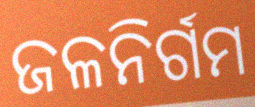
ଜଳନିର୍ଗମ